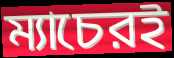
ম্যাচেরই